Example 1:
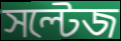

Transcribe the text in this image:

সল্টেজ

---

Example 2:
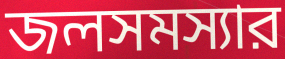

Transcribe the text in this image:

জলসমস্যার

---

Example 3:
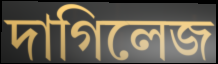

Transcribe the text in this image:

দাগিলেজ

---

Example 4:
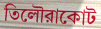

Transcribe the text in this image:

তিলৌরাকোট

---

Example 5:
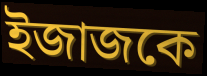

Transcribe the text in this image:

ইজাজকে